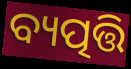
ବ୍ୟତ୍ପତ୍ତି